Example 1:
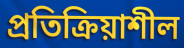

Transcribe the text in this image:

প্ৰতিক্ৰিয়াশীল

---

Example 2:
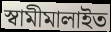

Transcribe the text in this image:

স্বামীমালাইত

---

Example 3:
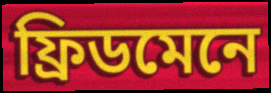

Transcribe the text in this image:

ফ্ৰিডমেনে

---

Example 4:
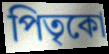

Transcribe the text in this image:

পিতৃকো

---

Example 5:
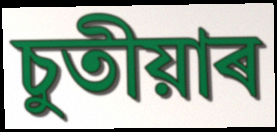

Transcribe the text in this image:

চুতীয়াৰ